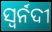
ସ୍ୱର୍ନଦୀ